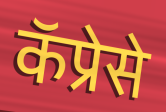
कॅप्रेसे